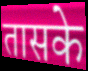
तासके